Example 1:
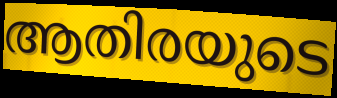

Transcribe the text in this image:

ആതിരയുടെ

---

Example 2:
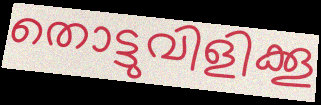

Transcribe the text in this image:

തൊട്ടുവിളിക്കൂ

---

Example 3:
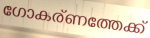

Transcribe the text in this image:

ഗോകര്ണത്തേക്ക്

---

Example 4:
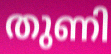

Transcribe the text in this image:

തുണി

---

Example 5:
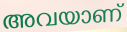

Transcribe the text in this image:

അവയാണ്